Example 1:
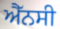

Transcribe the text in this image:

ਐੱਨਸੀ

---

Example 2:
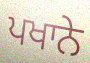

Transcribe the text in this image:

ਪਖਾਨੇ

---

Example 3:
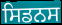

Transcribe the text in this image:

ਸਿਡਨਸ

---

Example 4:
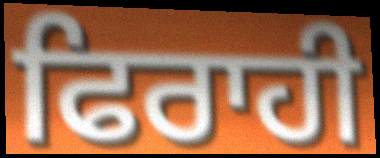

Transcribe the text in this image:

ਫਿਰਾਹੀ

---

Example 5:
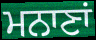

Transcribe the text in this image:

ਮਨਾਣਾਂ